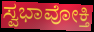
ಸ್ವಭಾವೋಕ್ತಿ